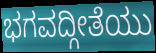
ಭಗವದ್ಗೀತೆಯು